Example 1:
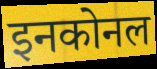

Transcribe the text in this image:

इनकोनल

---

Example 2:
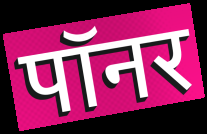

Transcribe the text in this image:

पॉनर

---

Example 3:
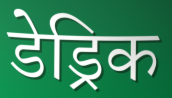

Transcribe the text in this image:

डेड्रिक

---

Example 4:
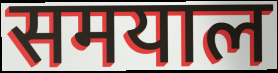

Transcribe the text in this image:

समयाल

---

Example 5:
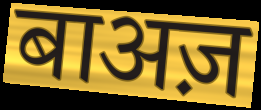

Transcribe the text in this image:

बाअज़